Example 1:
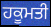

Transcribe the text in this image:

ਹਕੂਮਤੀ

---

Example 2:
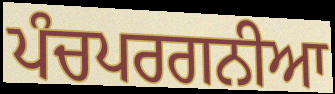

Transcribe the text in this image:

ਪੰਚਪਰਗਨੀਆ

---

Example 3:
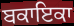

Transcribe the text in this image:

ਬਕਾਇਕਾ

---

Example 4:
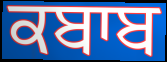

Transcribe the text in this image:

ਕਬਾਬ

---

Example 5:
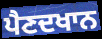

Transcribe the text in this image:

ਪੈਣਦਖਾਨ